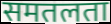
समतलता